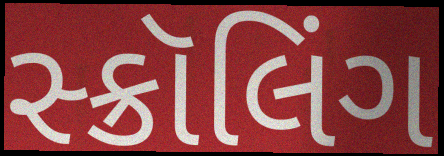
સ્ક્રૉલિંગ